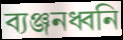
ব্যঞ্জনধ্বনি